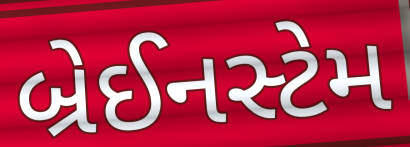
બ્રેઈનસ્ટેમ